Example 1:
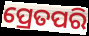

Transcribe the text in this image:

ପ୍ରେତପରି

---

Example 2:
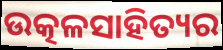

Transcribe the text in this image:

ଉତ୍କଳସାହିତ୍ୟର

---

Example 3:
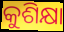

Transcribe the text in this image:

କୁଶିକ୍ଷା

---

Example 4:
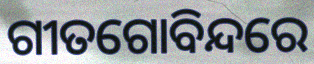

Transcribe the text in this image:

ଗୀତଗୋବିନ୍ଦରେ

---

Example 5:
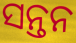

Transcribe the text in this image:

ସନ୍ତନ